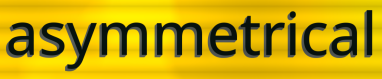
asymmetrical